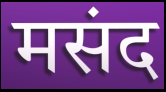
मसंद